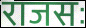
राजसः